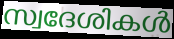
സ്വദേശികൾ